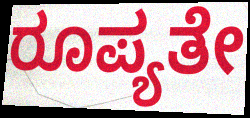
ರೂಪ್ಯತೇ